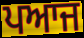
ਪਆਜ